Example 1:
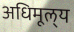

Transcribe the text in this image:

अधिमूल्य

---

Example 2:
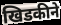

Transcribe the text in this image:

खिडकीने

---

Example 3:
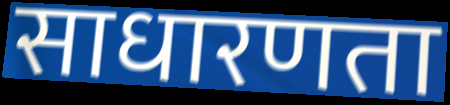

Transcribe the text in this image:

साधारणता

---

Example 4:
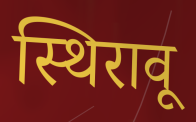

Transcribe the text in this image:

स्थिरावू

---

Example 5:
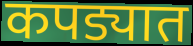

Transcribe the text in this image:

कपड्यात